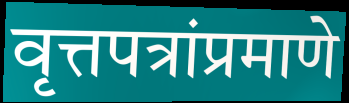
वृत्तपत्रांप्रमाणे